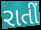
રાતીં